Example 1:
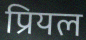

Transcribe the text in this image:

प्रियल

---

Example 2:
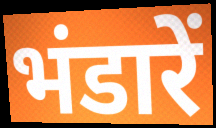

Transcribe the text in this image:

भंडारें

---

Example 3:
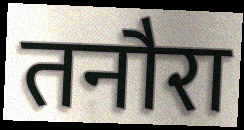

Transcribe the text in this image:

तनौरा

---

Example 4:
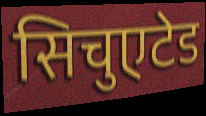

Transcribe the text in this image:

सिचुएटेड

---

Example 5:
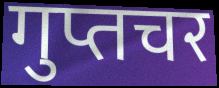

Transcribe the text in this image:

गुप्तचर